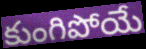
కుంగిపోయే